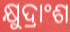
କ୍ଷୁଦ୍ରାଂଶ